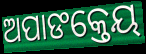
ଅପାଙକ୍ତେୟ